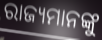
ରାଜ୍ଯମାନଙ୍କୁ